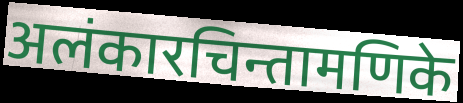
अलंकारचिन्तामणिके